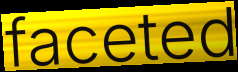
faceted